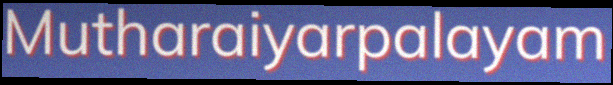
Mutharaiyarpalayam